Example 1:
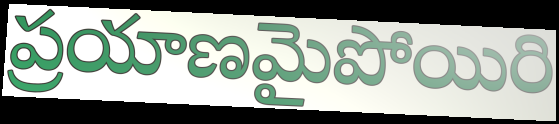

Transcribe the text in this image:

ప్రయాణమైపోయిరి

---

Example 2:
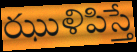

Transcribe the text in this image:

ఝుళిపిస్తే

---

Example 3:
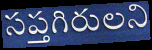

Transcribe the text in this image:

సప్తగిరులని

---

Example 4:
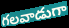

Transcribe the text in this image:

గలవాడుగా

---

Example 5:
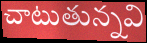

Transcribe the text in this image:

చాటుతున్నవి